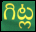
గిట్ల